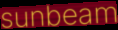
sunbeam